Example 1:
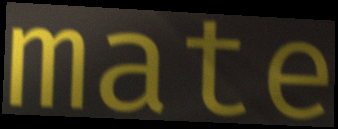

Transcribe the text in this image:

mate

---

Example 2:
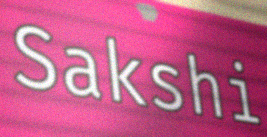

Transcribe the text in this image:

Sakshi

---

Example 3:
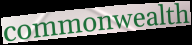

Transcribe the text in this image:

commonwealth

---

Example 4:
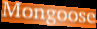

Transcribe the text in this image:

Mongoose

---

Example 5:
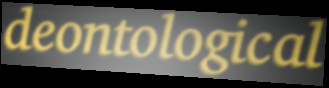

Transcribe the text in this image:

deontological